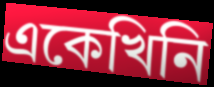
একেখিনি